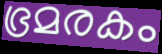
ഭ്രമരകം